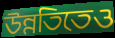
উন্নতিতেও